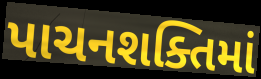
પાચનશક્તિમાં